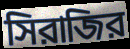
সিরাজির